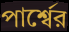
পার্শ্বের